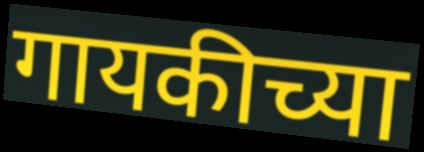
गायकीच्या